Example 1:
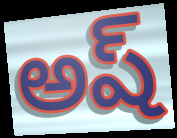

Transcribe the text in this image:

అష్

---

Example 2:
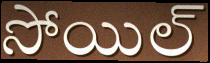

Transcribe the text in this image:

సోయిల్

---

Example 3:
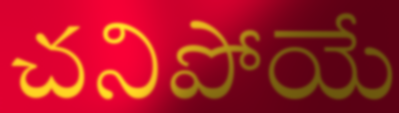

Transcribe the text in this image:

చనిపోయే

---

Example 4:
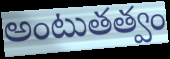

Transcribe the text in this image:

అంటుతత్వం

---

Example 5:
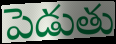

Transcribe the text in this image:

పెడుతు